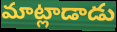
మాట్లాడాడు